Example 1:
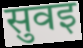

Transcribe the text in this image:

सुवइ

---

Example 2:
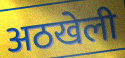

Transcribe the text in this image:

अठखेली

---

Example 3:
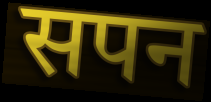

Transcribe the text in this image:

सपन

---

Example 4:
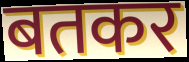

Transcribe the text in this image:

बतकर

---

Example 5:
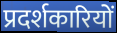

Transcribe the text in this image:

प्रदर्शकारियों